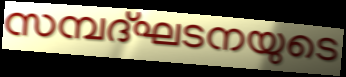
സമ്പദ്ഘടനയുടെ